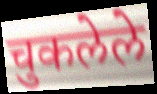
चुकलेले